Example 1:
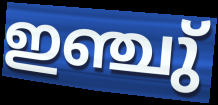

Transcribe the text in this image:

ഇഞ്ചു്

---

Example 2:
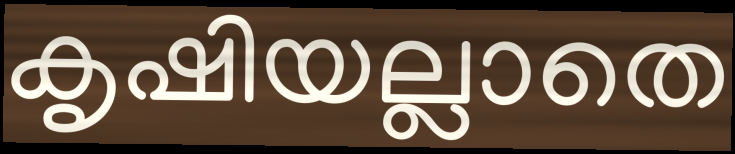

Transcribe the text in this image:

കൃഷിയല്ലാതെ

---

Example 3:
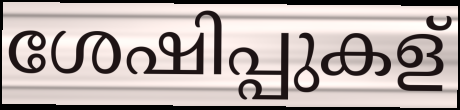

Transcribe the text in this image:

ശേഷിപ്പുകള്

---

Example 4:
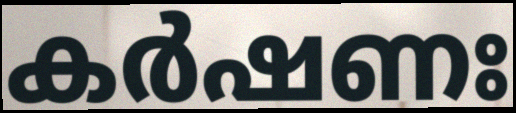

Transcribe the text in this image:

കർഷണഃ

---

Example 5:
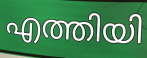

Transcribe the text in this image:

എത്തിയി